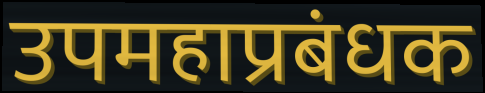
उपमहाप्रबंधक